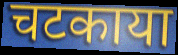
चटकाया